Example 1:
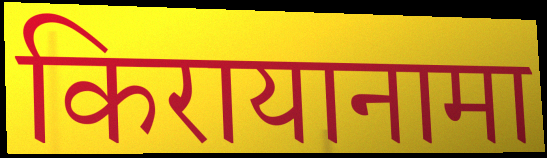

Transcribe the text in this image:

किरायानामा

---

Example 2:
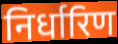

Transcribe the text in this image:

निर्धारिण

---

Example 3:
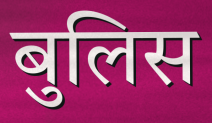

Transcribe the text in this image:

बुलिस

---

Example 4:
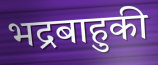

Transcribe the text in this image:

भद्रबाहुकी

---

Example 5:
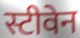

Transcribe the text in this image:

स्टीवेन